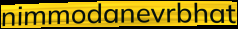
nimmodanevrbhat